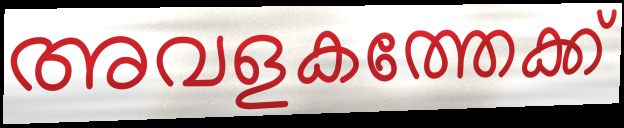
അവളകത്തേക്ക്